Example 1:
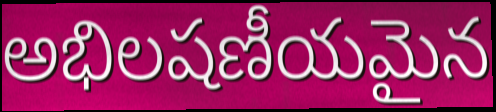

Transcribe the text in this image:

అభిలషణీయమైన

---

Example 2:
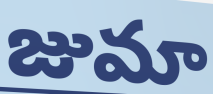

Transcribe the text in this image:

జుమా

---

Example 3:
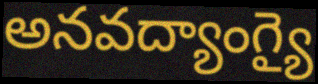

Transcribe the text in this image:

అనవద్యాంగ్యై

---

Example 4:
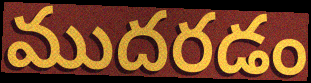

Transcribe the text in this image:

ముదరడం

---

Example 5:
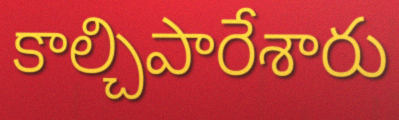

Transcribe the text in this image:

కాల్చిపారేశారు